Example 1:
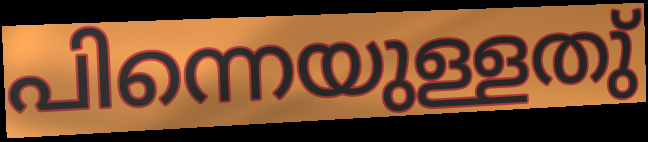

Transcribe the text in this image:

പിന്നെയുള്ളതു്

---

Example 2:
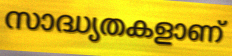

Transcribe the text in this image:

സാദ്ധ്യതകളാണ്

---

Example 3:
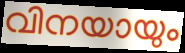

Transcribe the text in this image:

വിനയായും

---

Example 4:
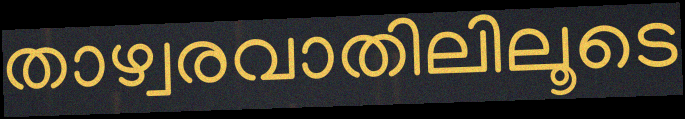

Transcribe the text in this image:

താഴ്വരവാതിലിലൂടെ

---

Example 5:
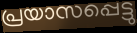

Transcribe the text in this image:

പ്രയാസപ്പെട്ടു